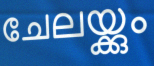
ചേലയ്ക്കും